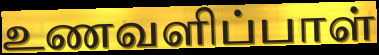
உணவளிப்பாள்